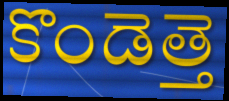
కొండెత్తె